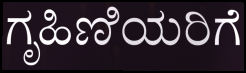
ಗೃಹಿಣಿಯರಿಗೆ